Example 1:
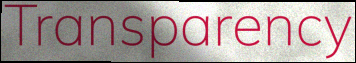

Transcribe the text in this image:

Transparency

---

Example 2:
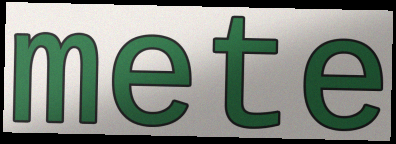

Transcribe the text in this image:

mete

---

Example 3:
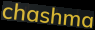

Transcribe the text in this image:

chashma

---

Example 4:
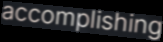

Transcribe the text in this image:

accomplishing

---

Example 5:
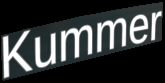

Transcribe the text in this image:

Kummer